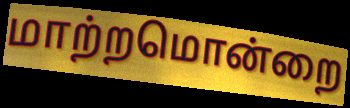
மாற்றமொன்றை